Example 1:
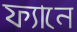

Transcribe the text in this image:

ফ্যানে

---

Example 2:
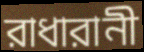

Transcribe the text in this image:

রাধারানী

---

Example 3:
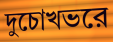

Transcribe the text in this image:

দুচোখভরে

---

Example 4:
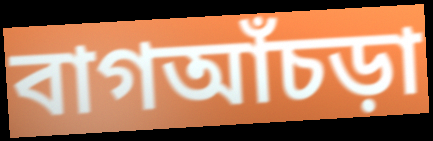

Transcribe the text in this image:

বাগআঁচড়া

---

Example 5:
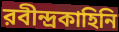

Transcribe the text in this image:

রবীন্দ্রকাহিনি